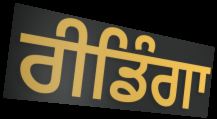
ਰੀਡਿੰਗਾ